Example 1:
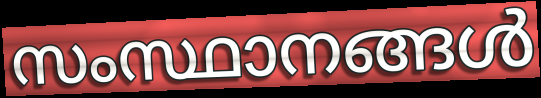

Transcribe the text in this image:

സംസ്ഥാനങ്ങൾ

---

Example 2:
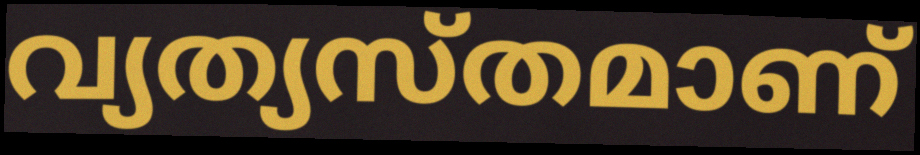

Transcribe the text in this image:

വ്യത്യസ്തമാണ്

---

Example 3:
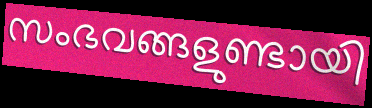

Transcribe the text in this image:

സംഭവങ്ങളുണ്ടായി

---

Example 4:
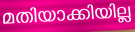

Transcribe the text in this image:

മതിയാക്കിയില്ല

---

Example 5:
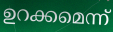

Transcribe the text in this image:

ഉറക്കമെന്ന്